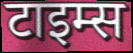
टाइम्स